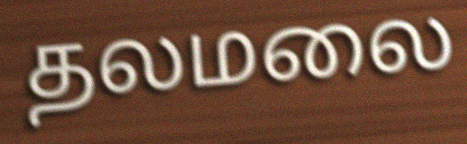
தலமலை